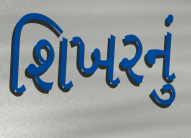
શિખરનું